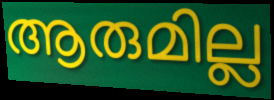
ആരുമില്ല